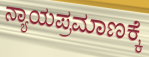
ನ್ಯಾಯಪ್ರಮಾಣಕ್ಕೆ